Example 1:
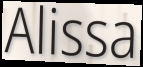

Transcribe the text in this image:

Alissa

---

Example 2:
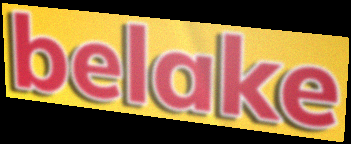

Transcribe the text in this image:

belake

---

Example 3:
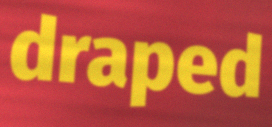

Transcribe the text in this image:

draped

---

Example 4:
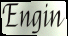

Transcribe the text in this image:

Engin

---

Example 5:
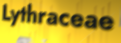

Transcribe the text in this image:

Lythraceae